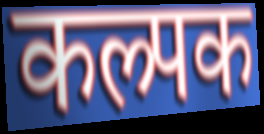
कल्पक